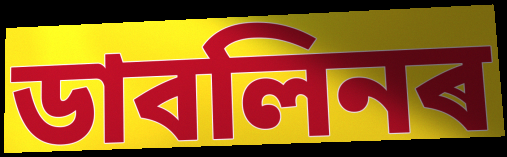
ডাবলিনৰ